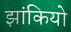
झांकियो